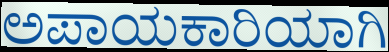
ಅಪಾಯಕಾರಿಯಾಗಿ